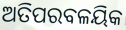
ଅତିପରବଳୟିକ